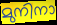
മുനിനാ